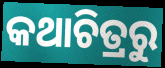
କଥାଚିତ୍ରରୁ